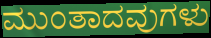
ಮುಂತಾದವುಗಳು